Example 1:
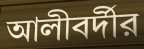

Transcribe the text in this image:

আলীবর্দীর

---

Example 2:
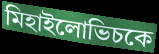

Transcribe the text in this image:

মিহাইলোভিচকে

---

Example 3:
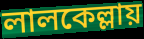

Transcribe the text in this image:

লালকেল্লায়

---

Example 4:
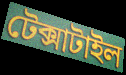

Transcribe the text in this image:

টেক্সাটাইল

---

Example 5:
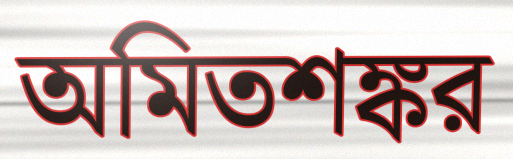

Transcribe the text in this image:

অমিতশঙ্কর